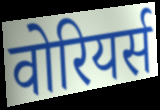
वोरियर्स